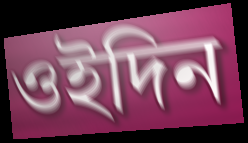
ওইদিন